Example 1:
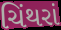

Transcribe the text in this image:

ચિંથરાં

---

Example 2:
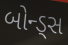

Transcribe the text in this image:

બોન્ડ્સ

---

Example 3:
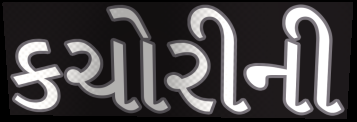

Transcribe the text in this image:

કચોરીની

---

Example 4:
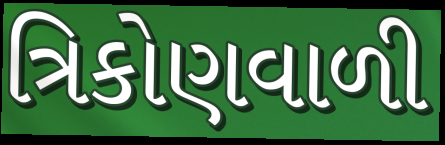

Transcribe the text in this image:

ત્રિકોણવાળી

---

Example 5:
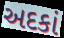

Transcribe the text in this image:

અદકાં